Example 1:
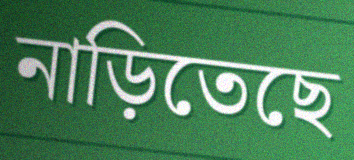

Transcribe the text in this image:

নাড়িতেছে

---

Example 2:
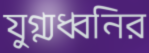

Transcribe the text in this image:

যুগ্মধ্বনির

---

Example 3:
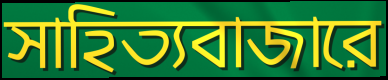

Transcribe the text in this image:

সাহিত্যবাজারে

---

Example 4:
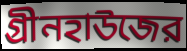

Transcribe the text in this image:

গ্রীনহাউজের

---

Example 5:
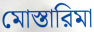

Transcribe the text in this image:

মোস্তারিমা